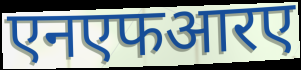
एनएफआरए